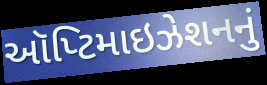
ઑપ્ટિમાઇઝેશનનું